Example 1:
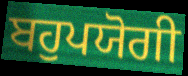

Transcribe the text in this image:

ਬਹੁਪਯੋਗੀ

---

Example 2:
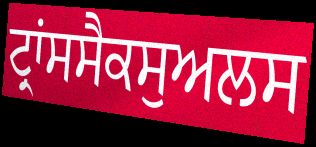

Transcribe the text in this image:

ਟ੍ਰਾਂਸਸੈਕਸੁਅਲਸ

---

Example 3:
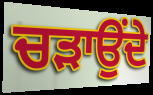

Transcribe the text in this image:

ਚੜਾਉਂਦੇ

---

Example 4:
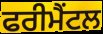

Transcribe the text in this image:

ਫਰੀਮੈਂਟਲ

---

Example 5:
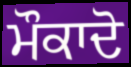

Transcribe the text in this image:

ਮੌਕਾਦੋ